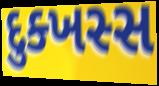
દુક્ખસ્સ